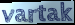
vartak